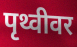
पृथ्वीवर